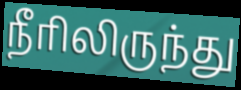
நீரிலிருந்து